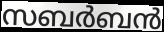
സബർബൻ